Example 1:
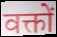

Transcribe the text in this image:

वक्तों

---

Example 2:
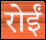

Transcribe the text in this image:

रोईं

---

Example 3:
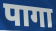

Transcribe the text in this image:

पागा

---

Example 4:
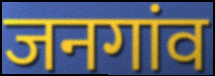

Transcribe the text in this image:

जनगांव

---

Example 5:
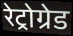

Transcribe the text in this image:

रेट्रोग्रेड